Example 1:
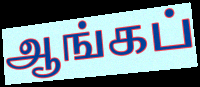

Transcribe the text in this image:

ஆங்கப்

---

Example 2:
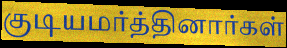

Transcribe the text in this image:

குடியமர்த்தினார்கள்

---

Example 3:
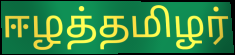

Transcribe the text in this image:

ஈழத்தமிழர்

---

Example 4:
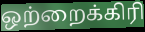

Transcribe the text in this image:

ஒற்றைக்கிரி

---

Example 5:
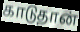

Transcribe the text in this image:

காடுதான்